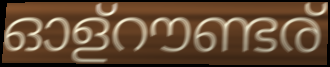
ഓള്റൗണ്ടര്